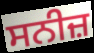
ਸਨੀਜ਼